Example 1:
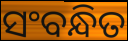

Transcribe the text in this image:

ସଂବନ୍ଧିତ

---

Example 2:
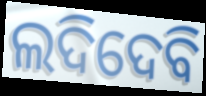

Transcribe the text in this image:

ଲଦିଦେବି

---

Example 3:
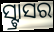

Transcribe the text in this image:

ସ୍ଟ୍ରାସର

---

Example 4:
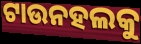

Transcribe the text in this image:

ଟାଉନହଲକୁ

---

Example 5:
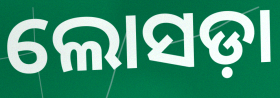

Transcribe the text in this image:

ଲୋସଡ଼ା